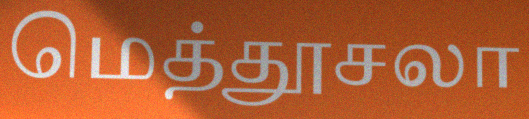
மெத்தூசலா